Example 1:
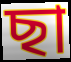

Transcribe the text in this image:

ছা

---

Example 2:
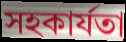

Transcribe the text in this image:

সহকাৰ্যতা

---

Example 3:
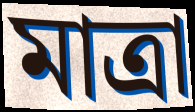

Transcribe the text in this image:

মাত্ৰা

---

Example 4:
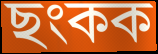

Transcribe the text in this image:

ছংকক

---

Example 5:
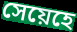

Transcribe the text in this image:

সেয়েহে